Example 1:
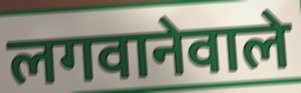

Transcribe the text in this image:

लगवानेवाले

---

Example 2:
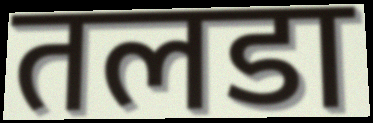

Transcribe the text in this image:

तलडा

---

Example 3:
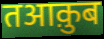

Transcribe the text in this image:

तआक़ुब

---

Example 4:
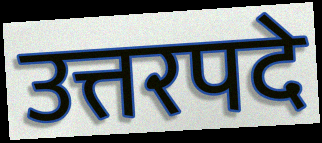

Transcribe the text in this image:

उत्तरपदे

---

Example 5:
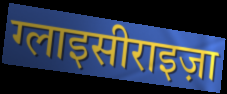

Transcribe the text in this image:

ग्लाइसीराइज़ा